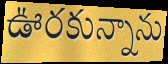
ఊరకున్నాను